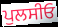
ਪੁਲਸੀਓ